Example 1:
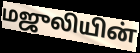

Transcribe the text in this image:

மஜுலியின்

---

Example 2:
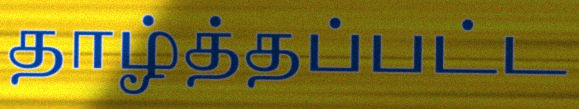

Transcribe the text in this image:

தாழ்த்தப்பட்ட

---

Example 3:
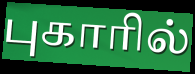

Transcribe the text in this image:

புகாரில்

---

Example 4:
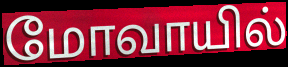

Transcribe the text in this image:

மோவாயில்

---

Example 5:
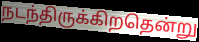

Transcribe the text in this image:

நடந்திருக்கிறதென்று